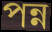
পন্ন